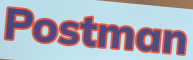
Postman